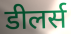
डीलर्स